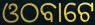
ଓଠବାଟେ